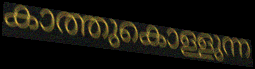
കാത്തുകൊള്ളുന്ന